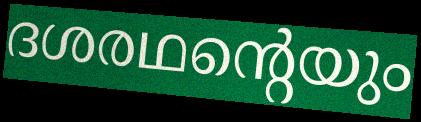
ദശരഥന്റെയും